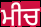
ਮੀਚ